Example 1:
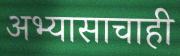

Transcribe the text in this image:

अभ्यासाचाही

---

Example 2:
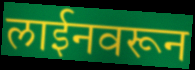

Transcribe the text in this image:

लाईनवरून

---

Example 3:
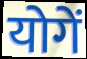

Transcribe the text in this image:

योगें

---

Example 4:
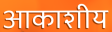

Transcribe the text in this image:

आकाशीय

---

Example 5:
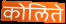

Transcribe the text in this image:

कोलिते